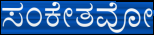
ಸಂಕೇತವೋ